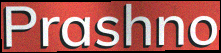
Prashno